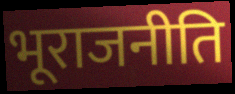
भूराजनीति